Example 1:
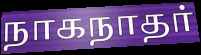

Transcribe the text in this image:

நாகநாதர்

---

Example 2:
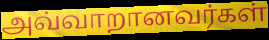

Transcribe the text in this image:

அவ்வாறானவர்கள்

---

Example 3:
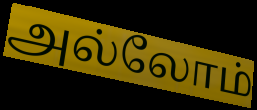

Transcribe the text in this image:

அல்லோம்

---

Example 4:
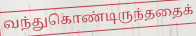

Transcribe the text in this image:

வந்துகொண்டிருந்ததைக்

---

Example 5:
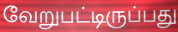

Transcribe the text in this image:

வேறுபட்டிருப்பது